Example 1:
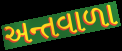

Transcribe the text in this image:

અન્તવાળા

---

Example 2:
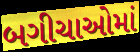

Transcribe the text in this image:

બગીચાઓમાં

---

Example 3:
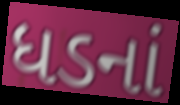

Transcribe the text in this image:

ધડનાં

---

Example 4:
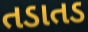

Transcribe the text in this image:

તડાતડ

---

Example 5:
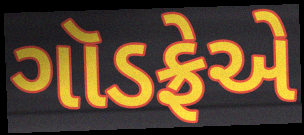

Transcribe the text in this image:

ગૉડફ્રેએ